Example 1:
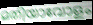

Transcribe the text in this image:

മതിയാവോളം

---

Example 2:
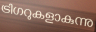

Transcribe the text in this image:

ട്രിഗറുകളാകുന്നു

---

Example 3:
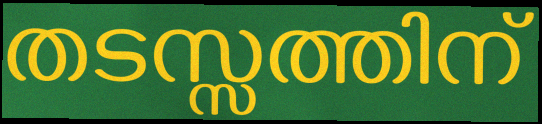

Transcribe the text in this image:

തടസ്സത്തിന്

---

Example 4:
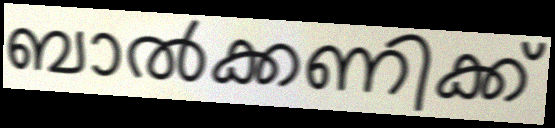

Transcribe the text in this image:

ബാൽക്കണിക്ക്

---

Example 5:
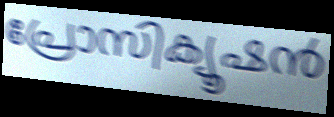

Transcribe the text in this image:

പ്രോസിക്യൂഷൻ